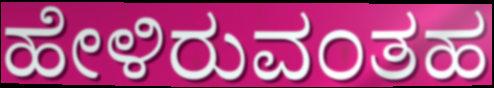
ಹೇಳಿರುವಂತಹ